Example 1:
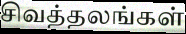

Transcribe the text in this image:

சிவத்தலங்கள்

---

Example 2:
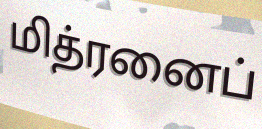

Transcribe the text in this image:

மித்ரனைப்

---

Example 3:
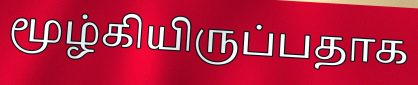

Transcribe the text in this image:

மூழ்கியிருப்பதாக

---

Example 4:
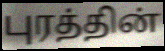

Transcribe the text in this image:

புரத்தின்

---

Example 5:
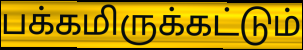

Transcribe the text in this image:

பக்கமிருக்கட்டும்